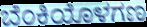
ಬೆಂಕಿಯೊಳಗಣ